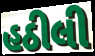
હઠીલી